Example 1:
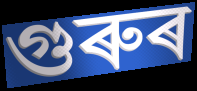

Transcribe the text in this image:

গুৰুৰ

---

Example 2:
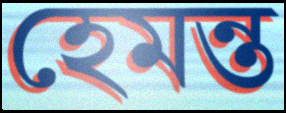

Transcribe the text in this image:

হেমন্ত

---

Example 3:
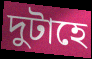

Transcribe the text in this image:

দুটাহে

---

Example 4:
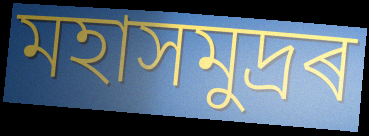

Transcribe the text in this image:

মহাসমুদ্ৰৰ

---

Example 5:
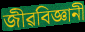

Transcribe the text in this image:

জীৱবিজ্ঞানী